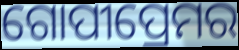
ଗୋପୀପ୍ରେମର